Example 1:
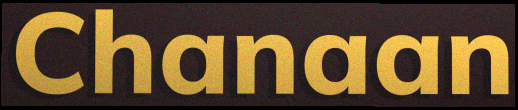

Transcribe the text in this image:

Chanaan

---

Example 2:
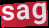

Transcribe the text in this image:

sag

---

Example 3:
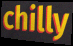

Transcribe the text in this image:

chilly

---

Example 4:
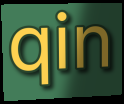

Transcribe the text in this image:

qin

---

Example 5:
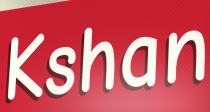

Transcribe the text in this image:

Kshan